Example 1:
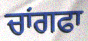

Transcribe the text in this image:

ਚਾਂਗਫਾ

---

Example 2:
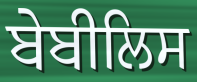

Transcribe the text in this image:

ਬੇਬੀਲਿਸ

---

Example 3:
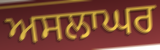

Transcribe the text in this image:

ਅਸਲਾਘਰ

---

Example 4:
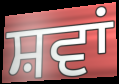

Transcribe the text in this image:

ਸ਼ਵਾਂ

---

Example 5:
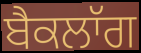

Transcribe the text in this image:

ਬੈਕਲਾੱਗ